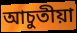
আচুতীয়া